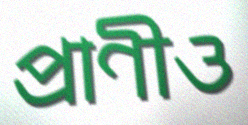
প্রাণীও